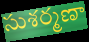
సుశర్మణా